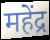
महेंद्र